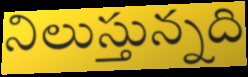
నిలుస్తున్నది